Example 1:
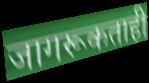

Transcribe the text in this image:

जागरूकताही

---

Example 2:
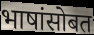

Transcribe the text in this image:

भाषांसोबत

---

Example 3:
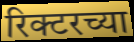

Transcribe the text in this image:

रिक्टरच्या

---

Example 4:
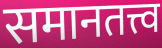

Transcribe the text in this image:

समानतत्त्व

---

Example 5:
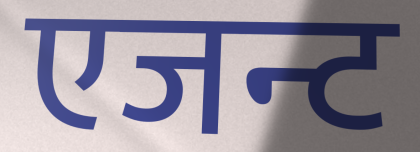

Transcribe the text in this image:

एजन्ट